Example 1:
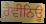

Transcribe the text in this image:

ਰੈਵੀਨਿਊ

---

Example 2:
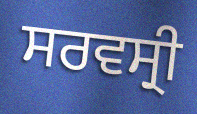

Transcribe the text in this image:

ਸਰਵਸ੍ਰੀ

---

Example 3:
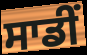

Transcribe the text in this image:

ਸਾਡੀਂ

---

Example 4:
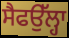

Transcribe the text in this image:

ਸੈਫਉੱਲ੍ਹਾ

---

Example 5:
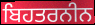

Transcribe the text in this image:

ਬਿਹਤਰਨੀਨ